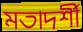
মতাদর্শী